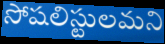
సోషలిస్టులమని